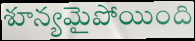
శూన్యమైపోయింది